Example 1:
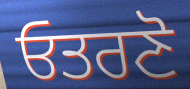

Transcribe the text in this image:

ਓਤਰਣੋ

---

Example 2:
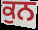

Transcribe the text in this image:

ਕੁਨ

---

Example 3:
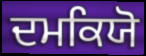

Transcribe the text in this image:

ਦਮਕਿਯੋ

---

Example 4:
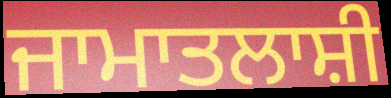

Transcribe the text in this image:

ਜਾਮਾਤਲਾਸ਼ੀ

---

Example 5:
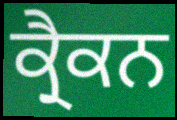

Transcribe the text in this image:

ਕ੍ਰੈਕਨ